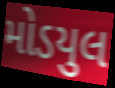
મોડયુલ